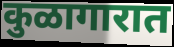
कुळागारात